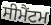
ਸੀਮੈਂਟਮ